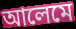
আলেমে